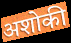
अशोकी